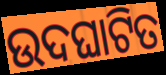
ଉଦଘାଟିତ